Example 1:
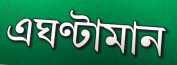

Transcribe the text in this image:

এঘণ্টামান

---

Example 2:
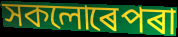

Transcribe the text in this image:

সকলোৰেপৰা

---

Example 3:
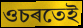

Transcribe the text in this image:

ওচৰতেই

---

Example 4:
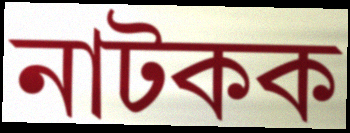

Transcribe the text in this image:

নাটকক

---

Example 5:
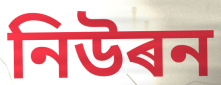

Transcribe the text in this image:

নিউৰন